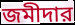
জমীদার